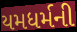
યમધર્મની